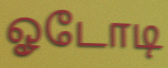
ஓடோடி